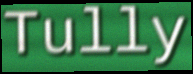
Tully